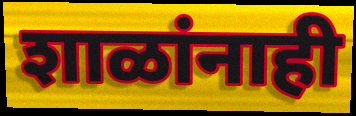
शाळांनाही